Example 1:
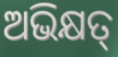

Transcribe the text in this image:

ଅଭିକ୍ଷତ୍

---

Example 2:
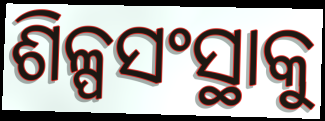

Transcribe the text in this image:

ଶିଳ୍ପସଂସ୍ଥାକୁ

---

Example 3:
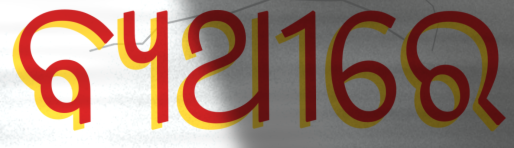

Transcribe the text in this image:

ବ୍ୟଥୀରେ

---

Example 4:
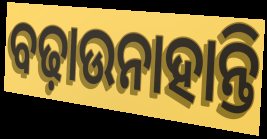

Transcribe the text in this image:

ବଢ଼ାଉନାହାନ୍ତି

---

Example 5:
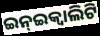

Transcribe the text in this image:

ଇନ୍ଇକ୍ଵାଲିଟି